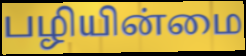
பழியின்மை